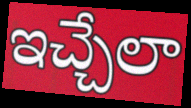
ఇచ్చేలా